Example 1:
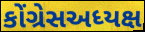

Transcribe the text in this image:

કોંગ્રેસઅધ્યક્ષ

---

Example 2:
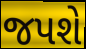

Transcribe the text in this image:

જપશે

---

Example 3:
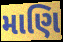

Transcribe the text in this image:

માણિ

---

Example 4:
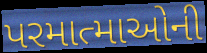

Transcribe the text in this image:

પરમાત્માઓની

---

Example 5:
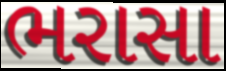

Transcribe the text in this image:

ભરાસા